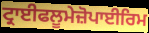
ਟ੍ਰਾਈਫਲੂਮੇਜ਼ੋਪਾਈਰਿਮ